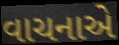
વાચનાએ